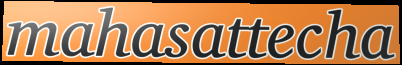
mahasattecha